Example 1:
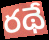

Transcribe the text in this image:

రథే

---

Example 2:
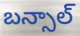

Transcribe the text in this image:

బన్సాల్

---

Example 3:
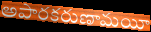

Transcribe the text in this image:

అపారకరుణామయీ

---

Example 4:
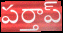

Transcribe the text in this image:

పర్తాప్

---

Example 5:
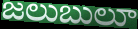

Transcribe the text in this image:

జలుబులూ